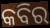
କବିର